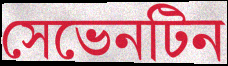
সেভেনটিন